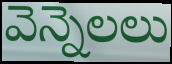
వెన్నెలలు